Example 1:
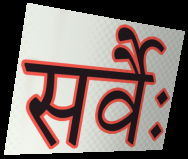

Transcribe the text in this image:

सर्वैः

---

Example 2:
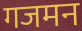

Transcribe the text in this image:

गजमन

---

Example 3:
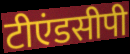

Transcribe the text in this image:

टीएंडसीपी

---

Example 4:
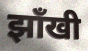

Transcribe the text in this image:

झाँखी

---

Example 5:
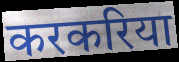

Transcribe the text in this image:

करकरिया